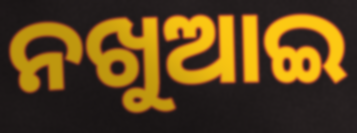
ନଖୁଆଇ